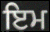
ਇਮ